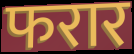
फरार